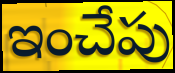
ఇంచేపు